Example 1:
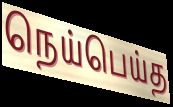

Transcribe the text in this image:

நெய்பெய்த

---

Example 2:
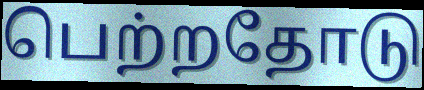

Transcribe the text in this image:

பெற்றதோடு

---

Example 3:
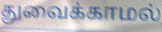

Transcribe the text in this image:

துவைக்காமல்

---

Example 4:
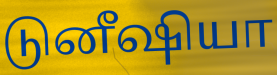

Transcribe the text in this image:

டுனீஷியா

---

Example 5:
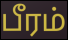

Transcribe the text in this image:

பீரம்